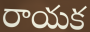
రాయక